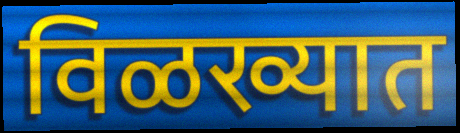
विळख्यात